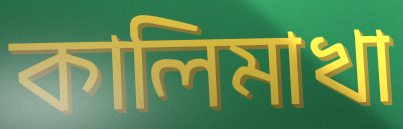
কালিমাখা